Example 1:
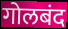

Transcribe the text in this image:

गोलबंद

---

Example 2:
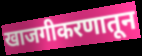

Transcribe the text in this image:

खाजगीकरणातून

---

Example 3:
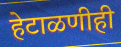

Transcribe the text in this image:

हेटाळणीही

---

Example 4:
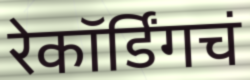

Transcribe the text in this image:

रेकॉर्डिंगचं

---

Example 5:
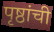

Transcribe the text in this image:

पृष्ठांची